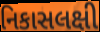
નિકાસલક્ષી